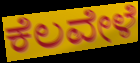
ಕೆಲವೇಳೆ